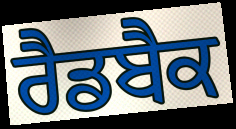
ਰੈਡਬੈਕ